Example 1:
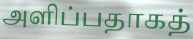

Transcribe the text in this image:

அளிப்பதாகத்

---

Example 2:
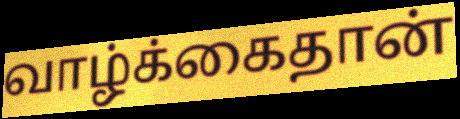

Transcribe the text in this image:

வாழ்க்கைதான்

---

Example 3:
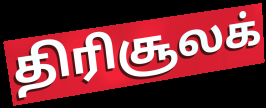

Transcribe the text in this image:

திரிசூலக்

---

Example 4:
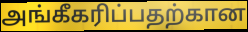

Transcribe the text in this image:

அங்கீகரிப்பதற்கான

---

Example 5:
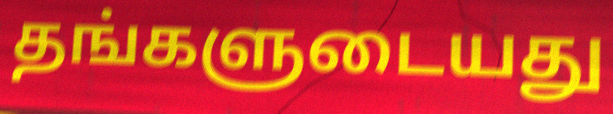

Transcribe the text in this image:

தங்களுடையது